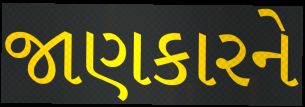
જાણકારને